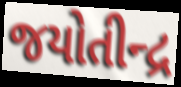
જયોતીન્દ્ર